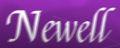
Newell